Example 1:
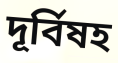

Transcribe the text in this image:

দূর্বিষহ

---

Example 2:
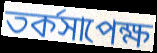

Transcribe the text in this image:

তর্কসাপেক্ষ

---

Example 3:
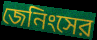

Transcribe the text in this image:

জেনিংসের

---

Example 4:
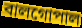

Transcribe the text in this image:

বালগোপাল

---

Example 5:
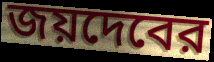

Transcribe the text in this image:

জয়দেবের